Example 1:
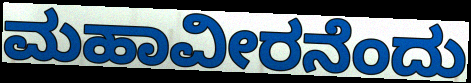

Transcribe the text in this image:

ಮಹಾವೀರನೆಂದು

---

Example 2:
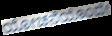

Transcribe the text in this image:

ಯೋಚನೆಯೊಂದೇ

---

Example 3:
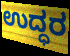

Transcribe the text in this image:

ಉದ್ಧರ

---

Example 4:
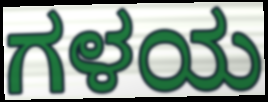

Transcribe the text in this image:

ಗಳಯ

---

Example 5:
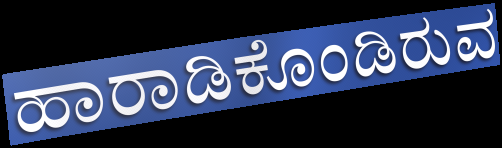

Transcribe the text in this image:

ಹಾರಾಡಿಕೊಂಡಿರುವ